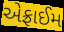
એફ્રાઈમ